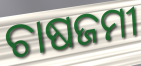
ଚାଷଜମୀ